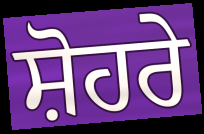
ਸ਼ੋਹਰੇ